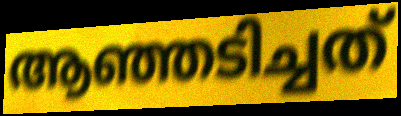
ആഞ്ഞടിച്ചത്